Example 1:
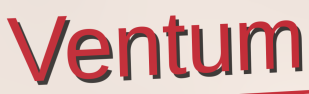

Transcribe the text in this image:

Ventum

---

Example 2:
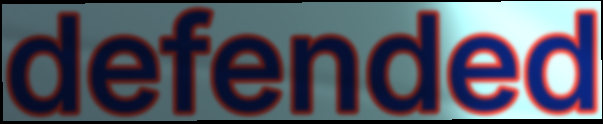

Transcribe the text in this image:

defended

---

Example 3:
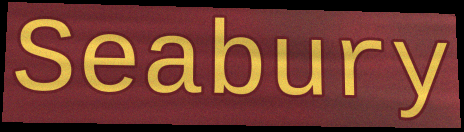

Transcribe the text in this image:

Seabury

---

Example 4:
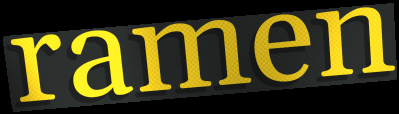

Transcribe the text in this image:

ramen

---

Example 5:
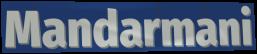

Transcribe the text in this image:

Mandarmani